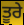
ਤੂਰੇ